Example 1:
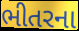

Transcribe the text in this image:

ભીતરના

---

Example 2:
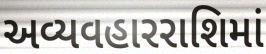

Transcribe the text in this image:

અવ્યવહારરાશિમાં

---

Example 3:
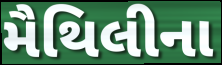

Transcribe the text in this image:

મૈથિલીના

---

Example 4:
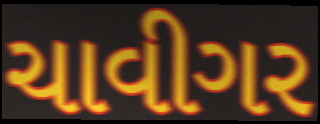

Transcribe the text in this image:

ચાવીગર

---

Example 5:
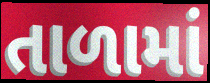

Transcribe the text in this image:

તાળામાં